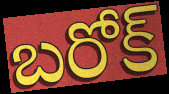
బరోక్